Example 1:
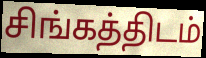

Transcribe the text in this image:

சிங்கத்திடம்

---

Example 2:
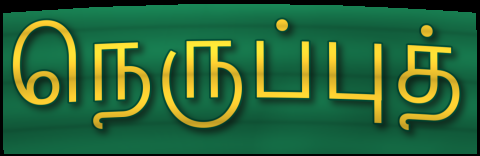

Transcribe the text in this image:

நெருப்புத்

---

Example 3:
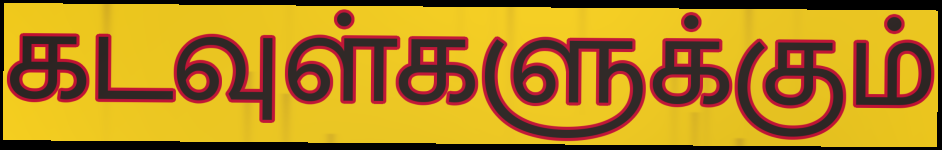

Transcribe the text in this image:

கடவுள்களுக்கும்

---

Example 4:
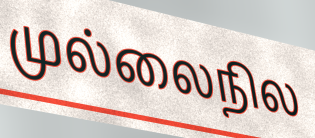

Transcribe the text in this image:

முல்லைநில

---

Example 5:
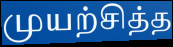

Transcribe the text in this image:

முயற்சித்த